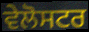
ਵੇਲੋਸਟਰ